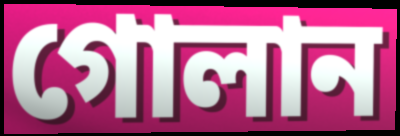
গোলান